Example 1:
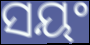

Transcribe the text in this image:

ସୟଂ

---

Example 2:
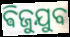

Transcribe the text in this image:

ଵିଜୁଯୁବ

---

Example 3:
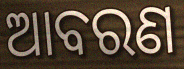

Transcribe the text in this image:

ଆବରଣ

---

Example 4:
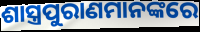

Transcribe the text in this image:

ଶାସ୍ତ୍ରପୁରାଣମାନଙ୍କରେ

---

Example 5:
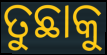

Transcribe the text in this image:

ତୁଛାକୁ